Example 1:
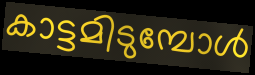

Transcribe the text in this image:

കാട്ടമിടുമ്പോൾ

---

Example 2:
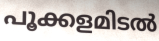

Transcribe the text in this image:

പൂക്കളമിടൽ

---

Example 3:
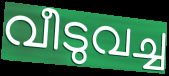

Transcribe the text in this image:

വീടുവച്ച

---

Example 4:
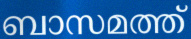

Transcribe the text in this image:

ബാസമത്ത്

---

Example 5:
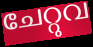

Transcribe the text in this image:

ചേറ്റുവ